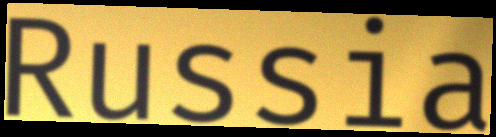
Russia